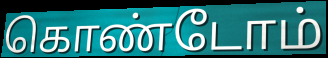
கொண்டோம்